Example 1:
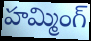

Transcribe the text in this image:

హమ్మింగ్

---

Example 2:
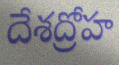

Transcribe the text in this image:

దేశద్రోహ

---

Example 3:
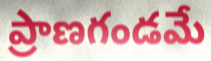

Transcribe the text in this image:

ప్రాణగండమే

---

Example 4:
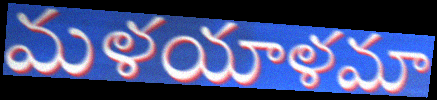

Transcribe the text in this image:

మళయాళమా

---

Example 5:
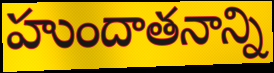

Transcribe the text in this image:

హుందాతనాన్ని